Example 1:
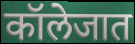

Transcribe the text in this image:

कॉलेजात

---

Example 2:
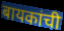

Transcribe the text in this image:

बायकांची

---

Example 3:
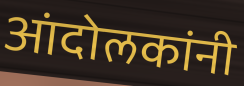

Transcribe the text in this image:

आंदोलकांनी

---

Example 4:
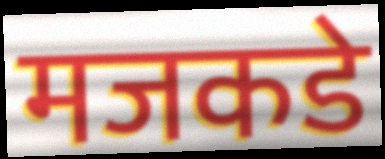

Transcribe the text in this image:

मजकडे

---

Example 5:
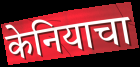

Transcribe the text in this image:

केनियाचा